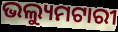
ଭଲ୍ୟୁମଟାରୀ